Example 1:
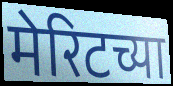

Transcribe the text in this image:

मेरिटच्या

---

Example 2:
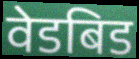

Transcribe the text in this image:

वेडबिड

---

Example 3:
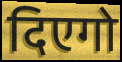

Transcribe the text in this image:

दिएगो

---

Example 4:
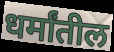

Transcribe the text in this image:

धर्मांतील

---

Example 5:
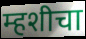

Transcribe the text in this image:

म्हशीचा